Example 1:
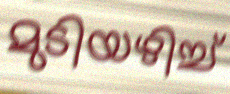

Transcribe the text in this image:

മുടിയഴിച്ച്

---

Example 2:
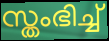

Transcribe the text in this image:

സ്തംഭിച്ച്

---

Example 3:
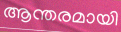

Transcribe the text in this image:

ആന്തരമായി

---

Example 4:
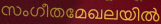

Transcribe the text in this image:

സംഗീതമേഖലയിൽ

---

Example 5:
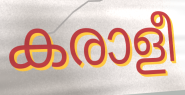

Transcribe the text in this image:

കരാളീ